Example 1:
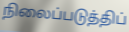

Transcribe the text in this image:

நிலைப்படுத்திப்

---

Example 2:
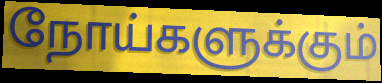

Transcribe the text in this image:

நோய்களுக்கும்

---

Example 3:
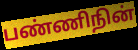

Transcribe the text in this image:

பண்ணிநின்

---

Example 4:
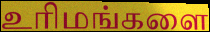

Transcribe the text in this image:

உரிமங்களை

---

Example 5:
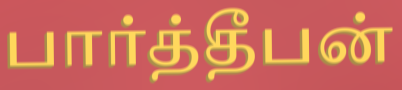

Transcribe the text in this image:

பார்த்தீபன்